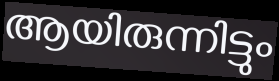
ആയിരുന്നിട്ടും